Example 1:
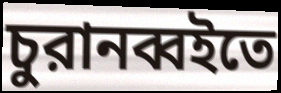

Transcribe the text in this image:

চুরানব্বইতে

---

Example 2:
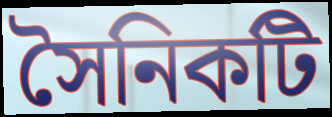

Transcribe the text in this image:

সৈনিকটি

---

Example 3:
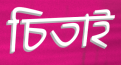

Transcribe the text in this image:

চিতাই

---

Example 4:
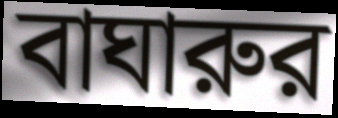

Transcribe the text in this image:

বাঘারুর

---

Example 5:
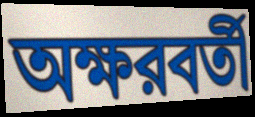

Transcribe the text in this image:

অক্ষরবর্তী